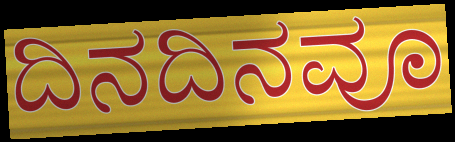
ದಿನದಿನವೂ